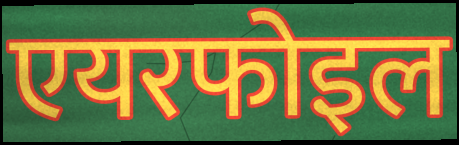
एयरफोइल